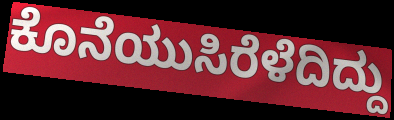
ಕೊನೆಯುಸಿರೆಳೆದಿದ್ದು